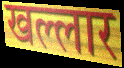
खल्लार